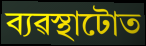
ব্যৱস্থাটোত